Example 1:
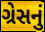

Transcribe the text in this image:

ગ્રેસનું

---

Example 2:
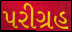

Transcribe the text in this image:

પરીગ્રહ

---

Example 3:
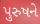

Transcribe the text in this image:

પુરુષને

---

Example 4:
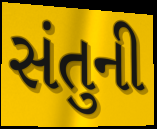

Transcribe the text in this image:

સંતુની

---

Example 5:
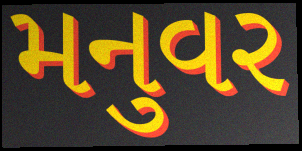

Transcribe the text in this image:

મનુવર